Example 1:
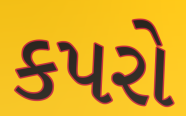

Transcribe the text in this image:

કપરો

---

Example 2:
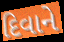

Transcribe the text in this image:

દિવાને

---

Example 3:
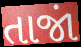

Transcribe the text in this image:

તાજાં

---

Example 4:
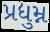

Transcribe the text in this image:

પ્રદ્યુમ્ન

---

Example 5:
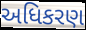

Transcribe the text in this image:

અધિકરણ